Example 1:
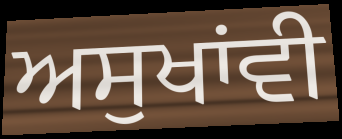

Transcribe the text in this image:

ਅਸੁਖਾਂਵੀ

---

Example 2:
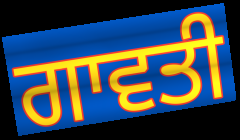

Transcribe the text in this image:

ਗਾਵਤੀ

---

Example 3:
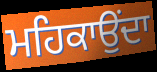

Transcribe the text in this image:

ਮਹਿਕਾਉਂਦਾ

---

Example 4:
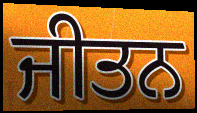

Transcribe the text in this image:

ਜੀਤਨ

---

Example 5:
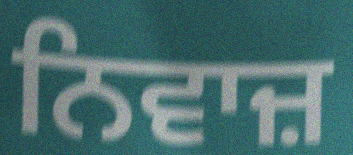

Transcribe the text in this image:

ਨਿਵਾਜ਼